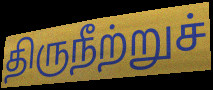
திருநீற்றுச்